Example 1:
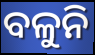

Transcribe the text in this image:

ବଳୁନି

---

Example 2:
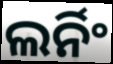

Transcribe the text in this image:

ଲର୍ନିଂ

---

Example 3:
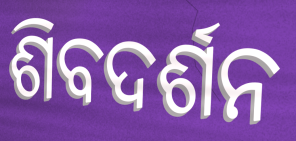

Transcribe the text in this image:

ଶିବଦର୍ଶନ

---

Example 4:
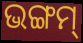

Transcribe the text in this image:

ଭଙ୍ଗମ୍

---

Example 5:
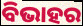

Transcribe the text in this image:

ବିଭାହର